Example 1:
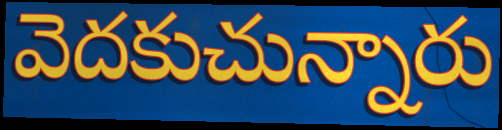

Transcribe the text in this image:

వెదకుచున్నారు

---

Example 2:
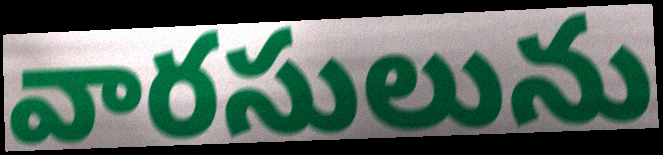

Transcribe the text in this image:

వారసులును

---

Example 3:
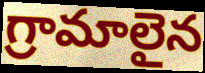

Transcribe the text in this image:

గ్రామాలైన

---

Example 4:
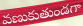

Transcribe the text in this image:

వణుకుతుండగా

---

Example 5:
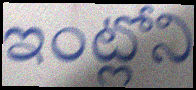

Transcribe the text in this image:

ఇంట్లోని